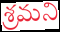
శ్రమని